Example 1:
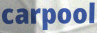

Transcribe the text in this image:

carpool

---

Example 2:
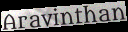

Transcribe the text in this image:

Aravinthan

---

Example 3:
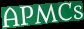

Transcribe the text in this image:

APMCs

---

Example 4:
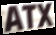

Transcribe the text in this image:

ATX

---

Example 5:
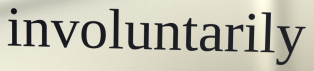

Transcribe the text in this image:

involuntarily